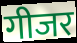
गीजर